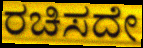
ರಚಿಸದೇ